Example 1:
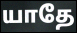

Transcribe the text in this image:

யாதே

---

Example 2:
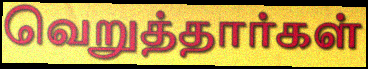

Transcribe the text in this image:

வெறுத்தார்கள்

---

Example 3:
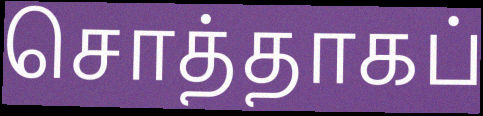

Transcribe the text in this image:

சொத்தாகப்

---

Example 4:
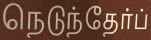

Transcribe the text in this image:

நெடுந்தேர்ப்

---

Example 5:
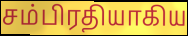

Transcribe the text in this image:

சம்பிரதியாகிய